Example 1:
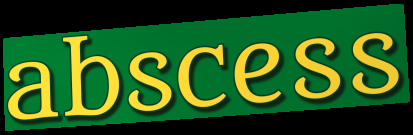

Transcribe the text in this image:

abscess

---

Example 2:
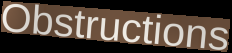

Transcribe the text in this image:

Obstructions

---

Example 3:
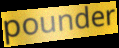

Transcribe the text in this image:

pounder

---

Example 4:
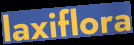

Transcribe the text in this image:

laxiflora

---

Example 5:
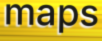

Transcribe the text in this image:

maps